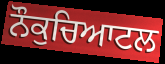
ਨੌਕੁਚਿਆਟਲ